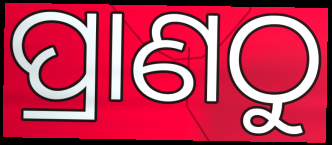
ପ୍ରାଣଠୁ